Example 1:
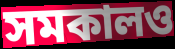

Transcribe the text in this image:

সমকালও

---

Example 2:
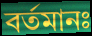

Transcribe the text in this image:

বর্তমানঃ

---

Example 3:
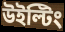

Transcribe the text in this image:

উইল্টিং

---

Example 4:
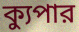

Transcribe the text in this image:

ক্যুপার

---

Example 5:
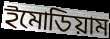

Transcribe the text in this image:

ইমোডিয়াম